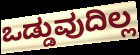
ಒಡ್ಡುವುದಿಲ್ಲ